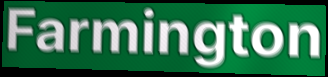
Farmington